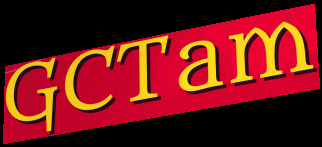
GCTam